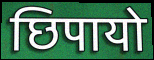
छिपायो